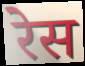
रेस